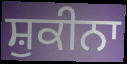
ਸ਼ੁਕੀਨਾ